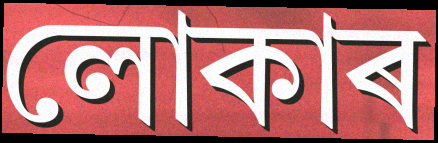
লোকাৰ